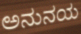
ಅನುನಯ